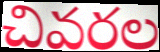
చివరల